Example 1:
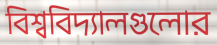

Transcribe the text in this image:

বিশ্ববিদ্যালগুলোর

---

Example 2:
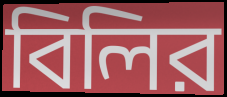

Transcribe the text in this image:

বিলির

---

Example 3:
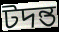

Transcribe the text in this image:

টদন্ত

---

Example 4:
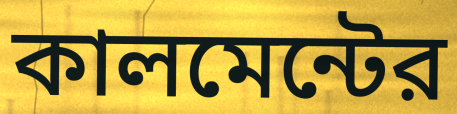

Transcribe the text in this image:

কালমেন্টের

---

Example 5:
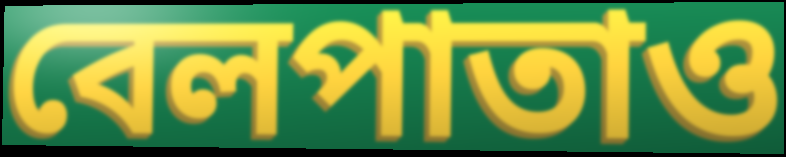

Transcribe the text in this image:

বেলপাতাও